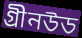
গ্রীনউড